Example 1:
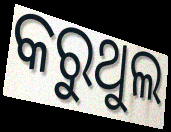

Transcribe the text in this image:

କରୁଥୁଲ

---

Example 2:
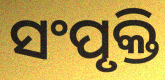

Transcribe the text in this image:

ସଂପୃକ୍ତି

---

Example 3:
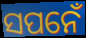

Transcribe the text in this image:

ସପନେଁ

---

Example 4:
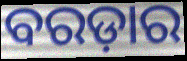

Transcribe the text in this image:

ବରଡ଼ାର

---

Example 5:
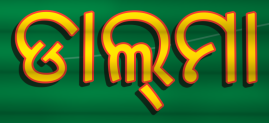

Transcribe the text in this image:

ଡାଲ୍‍ମା